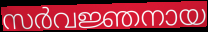
സർവജ്ഞനായ